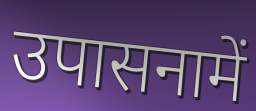
उपासनामें